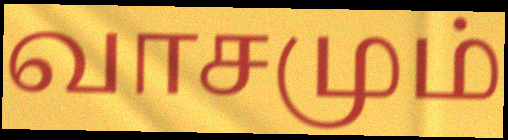
வாசமும்